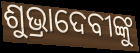
ଶୁଭ୍ରାଦେବୀଙ୍କୁ